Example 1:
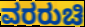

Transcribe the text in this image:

ವರರುಚಿ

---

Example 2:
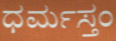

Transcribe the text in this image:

ಧರ್ಮಸ್ತಂ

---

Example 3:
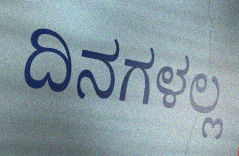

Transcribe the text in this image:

ದಿನಗಳಲ್ಲ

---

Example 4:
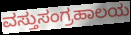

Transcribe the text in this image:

ವಸ್ತುಸಂಗ್ರಹಾಲಯ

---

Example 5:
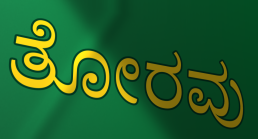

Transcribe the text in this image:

ತೋರವು